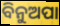
ବିନୁଅପା